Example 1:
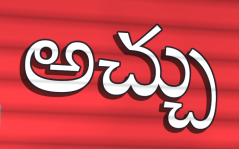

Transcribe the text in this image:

అచ్చు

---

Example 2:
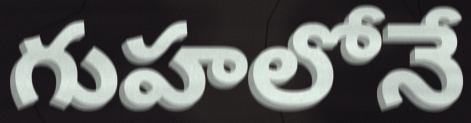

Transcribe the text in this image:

గుహలోనే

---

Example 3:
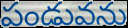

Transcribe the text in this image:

పండువను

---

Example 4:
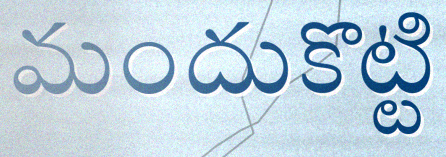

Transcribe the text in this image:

మందుకొట్టి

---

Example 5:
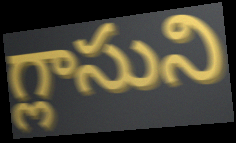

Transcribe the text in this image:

గ్లాసుని